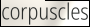
corpuscles